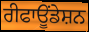
ਰੀਫਾਊਂਡੇਸ਼ਨ